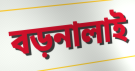
বড়নালাই